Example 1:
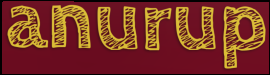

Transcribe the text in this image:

anurup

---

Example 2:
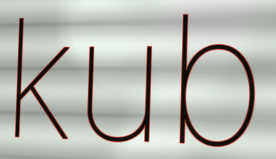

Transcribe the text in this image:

kub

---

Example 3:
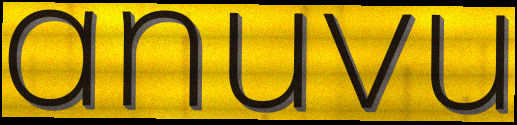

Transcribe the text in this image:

anuvu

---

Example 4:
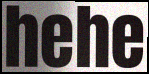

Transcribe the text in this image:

hehe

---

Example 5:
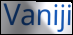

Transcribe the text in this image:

Vaniji